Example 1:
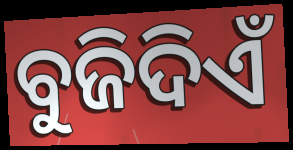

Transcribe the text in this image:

ବୁଜିଦିଏଁ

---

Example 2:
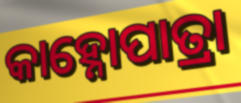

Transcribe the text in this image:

କାହ୍ନୋପାତ୍ରା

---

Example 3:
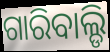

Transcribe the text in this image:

ଗାରିବାଲ୍ଡି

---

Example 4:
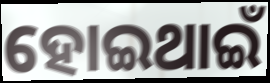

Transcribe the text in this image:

ହୋଇଥାଇଁ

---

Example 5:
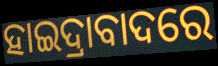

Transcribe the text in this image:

ହାଇଦ୍ରାବାଦରେ